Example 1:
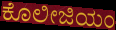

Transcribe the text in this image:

ಕೊಲೀಜಿಯಂ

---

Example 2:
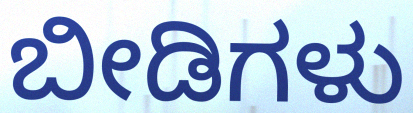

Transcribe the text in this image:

ಬೀಡಿಗಳು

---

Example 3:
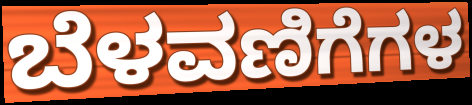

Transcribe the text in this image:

ಬೆಳವಣಿಗೆಗಳ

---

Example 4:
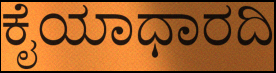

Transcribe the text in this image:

ಕೈಯಾಧಾರದಿ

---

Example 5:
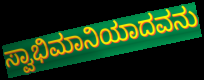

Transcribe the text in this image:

ಸ್ವಾಭಿಮಾನಿಯಾದವನು